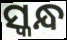
ସ୍କନ୍ଧ